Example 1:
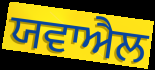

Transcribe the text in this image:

ਯਵਾਐਲ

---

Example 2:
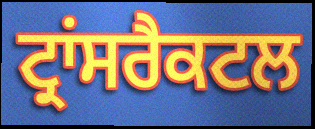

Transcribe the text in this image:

ਟ੍ਰਾਂਸਰੈਕਟਲ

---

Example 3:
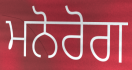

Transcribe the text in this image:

ਮਨੋਰੋਗ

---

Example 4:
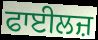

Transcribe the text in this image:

ਫਾਈਲਜ਼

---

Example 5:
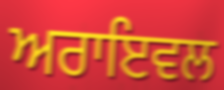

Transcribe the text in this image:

ਅਰਾਇਵਲ